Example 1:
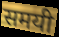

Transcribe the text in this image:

समयी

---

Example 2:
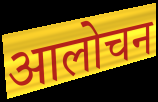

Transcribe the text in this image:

आलोचन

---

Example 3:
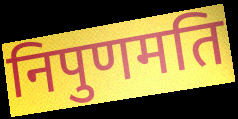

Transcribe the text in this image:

निपुणमति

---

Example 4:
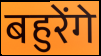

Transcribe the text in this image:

बहुरेंगे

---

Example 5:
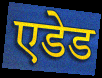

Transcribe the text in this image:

एडेड